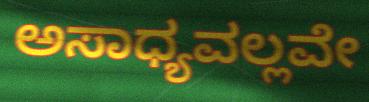
ಅಸಾಧ್ಯವಲ್ಲವೇ